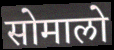
सोमालो